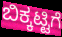
ಬಿಕ್ಕಟ್ಟಿಗೆ